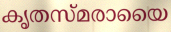
കൃതസ്മരായൈ